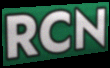
RCN